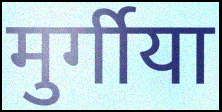
मुर्गीया